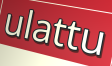
ulattu